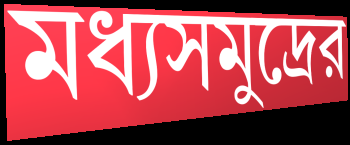
মধ্যসমুদ্রের